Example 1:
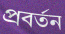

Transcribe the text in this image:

প্রবর্তন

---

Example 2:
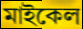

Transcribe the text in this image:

মাইকেল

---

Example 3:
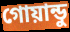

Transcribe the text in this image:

গোয়ান্ডু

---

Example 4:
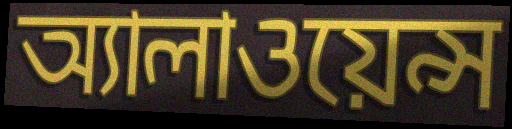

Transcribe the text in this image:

অ্যালাওয়েন্স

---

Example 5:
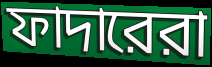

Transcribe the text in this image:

ফাদারেরা